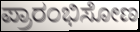
ಪ್ರಾರಂಭಿಸೋಣ